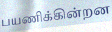
பயணிக்கின்றன